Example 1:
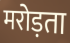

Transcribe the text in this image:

मरोड़ता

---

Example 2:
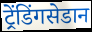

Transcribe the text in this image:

ट्रेंडिंगसेडान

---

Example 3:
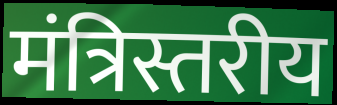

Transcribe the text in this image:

मंत्रिस्तरीय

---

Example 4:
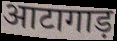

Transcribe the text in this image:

आटागाड़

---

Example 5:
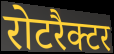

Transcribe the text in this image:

रोटरैक्टर